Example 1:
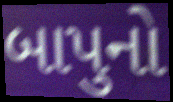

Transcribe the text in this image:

બાપુનો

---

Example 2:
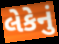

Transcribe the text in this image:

લેકેનું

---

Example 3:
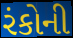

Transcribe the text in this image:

રંકોની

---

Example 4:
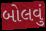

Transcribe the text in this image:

બોલવું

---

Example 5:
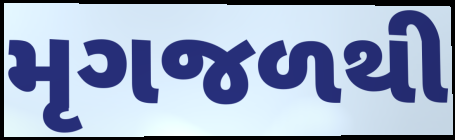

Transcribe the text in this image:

મૃગજળથી